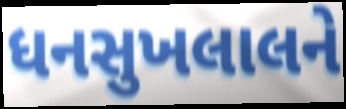
ધનસુખલાલને